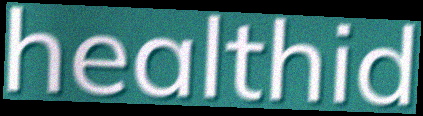
healthid